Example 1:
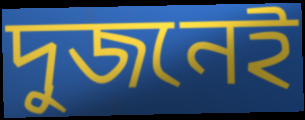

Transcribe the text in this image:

দুজনেই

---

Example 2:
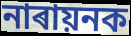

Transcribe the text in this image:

নাৰায়নক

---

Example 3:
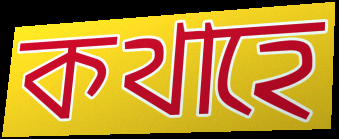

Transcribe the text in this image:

কথাহে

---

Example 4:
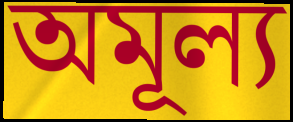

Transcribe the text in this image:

অমূল্য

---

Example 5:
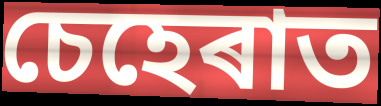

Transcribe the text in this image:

চেহেৰাত